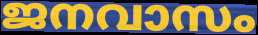
ജനവാസം